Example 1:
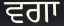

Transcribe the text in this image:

ਵਗਾ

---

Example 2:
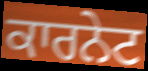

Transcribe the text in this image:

ਕਾਰਨੇਟ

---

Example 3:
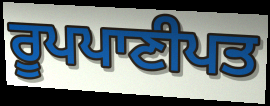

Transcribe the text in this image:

ਰੂਪਪਾਣੀਪਤ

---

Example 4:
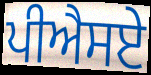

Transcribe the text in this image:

ਪੀਐਸਏ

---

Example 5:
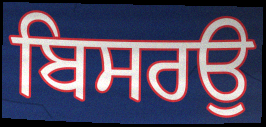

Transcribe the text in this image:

ਬਿਸਰਉ